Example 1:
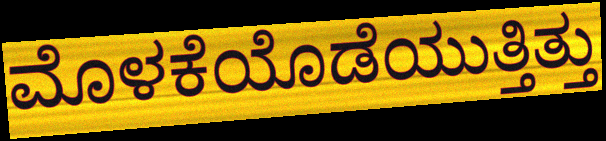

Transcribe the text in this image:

ಮೊಳಕೆಯೊಡೆಯುತ್ತಿತ್ತು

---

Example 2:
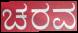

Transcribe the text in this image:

ಚರವ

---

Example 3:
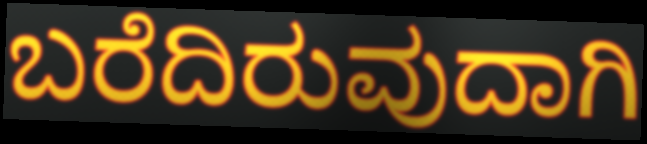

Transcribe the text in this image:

ಬರೆದಿರುವುದಾಗಿ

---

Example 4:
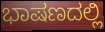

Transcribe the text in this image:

ಭಾಷಣದಲ್ಲಿ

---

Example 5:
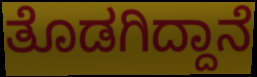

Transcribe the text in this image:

ತೊಡಗಿದ್ದಾನೆ